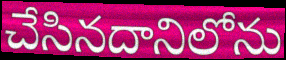
చేసినదానిలోను